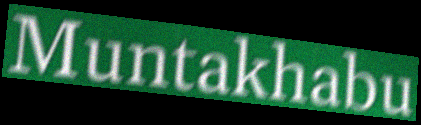
Muntakhabu